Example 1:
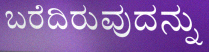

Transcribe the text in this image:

ಬರೆದಿರುವುದನ್ನು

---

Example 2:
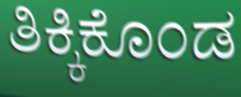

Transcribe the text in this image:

ತಿಕ್ಕಿಕೊಂಡ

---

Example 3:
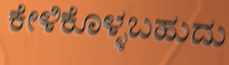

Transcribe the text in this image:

ಕೇಳಿಕೊಳ್ಳಬಹುದು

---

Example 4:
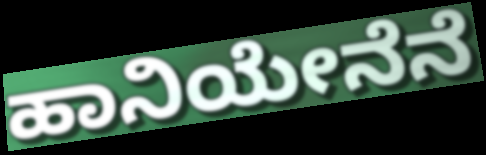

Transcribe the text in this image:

ಹಾನಿಯೇನೆನೆ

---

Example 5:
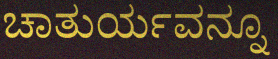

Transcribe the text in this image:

ಚಾತುರ್ಯವನ್ನೂ